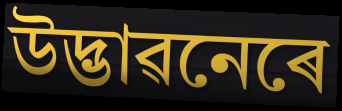
উদ্ভাৱনেৰে